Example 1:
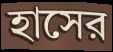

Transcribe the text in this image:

হাসের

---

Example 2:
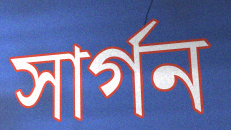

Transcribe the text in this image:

সার্গন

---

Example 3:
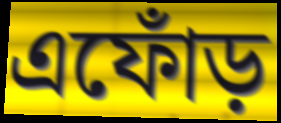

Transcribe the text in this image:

এফোঁড়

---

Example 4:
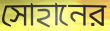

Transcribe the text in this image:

সোহানের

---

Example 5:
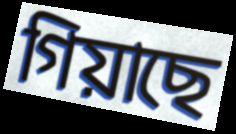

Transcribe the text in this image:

গিয়াছে